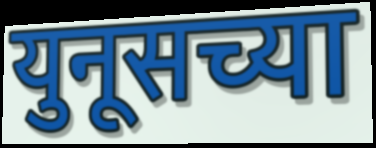
युनूसच्या